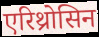
एरिथ्रोसिन